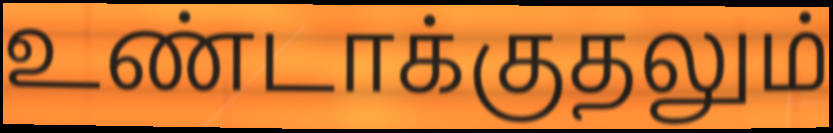
உண்டாக்குதலும்